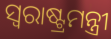
ସ୍ବରାଷ୍ଟ୍ରମନ୍ତ୍ରୀ